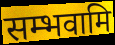
सम्भवामि